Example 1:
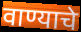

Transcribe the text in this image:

वाण्याचे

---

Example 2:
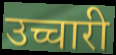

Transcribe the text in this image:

उच्चारी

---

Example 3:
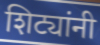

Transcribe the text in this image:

शिट्यांनी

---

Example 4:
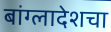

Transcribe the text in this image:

बांग्लादेशचा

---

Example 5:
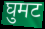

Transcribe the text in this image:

घुमट